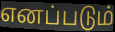
எனப்படும்